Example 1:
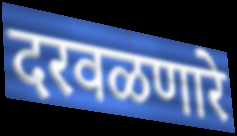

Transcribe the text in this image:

दरवळणारे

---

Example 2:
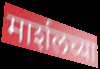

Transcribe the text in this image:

मार्शलच्या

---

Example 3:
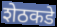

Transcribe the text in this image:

शेठकडे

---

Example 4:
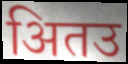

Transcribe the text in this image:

अितउ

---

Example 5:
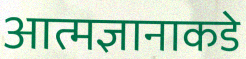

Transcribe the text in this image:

आत्मज्ञानाकडे